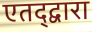
एतद्द्वारा